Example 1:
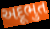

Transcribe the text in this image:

અદૂભુત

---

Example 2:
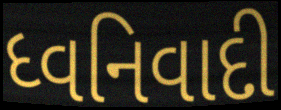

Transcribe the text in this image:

ધ્વનિવાદી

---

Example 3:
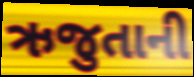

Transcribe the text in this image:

ઋજુતાની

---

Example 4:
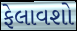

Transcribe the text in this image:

ફેલાવશો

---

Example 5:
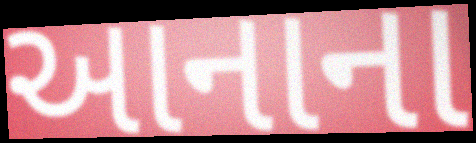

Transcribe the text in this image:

આનાના